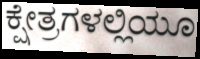
ಕ್ಷೇತ್ರಗಳಲ್ಲಿಯೂ